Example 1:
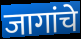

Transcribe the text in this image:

जागांचे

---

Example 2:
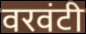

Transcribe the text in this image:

वरवंटी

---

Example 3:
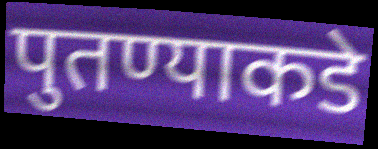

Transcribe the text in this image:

पुतण्याकडे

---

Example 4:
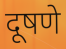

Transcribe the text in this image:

दूषणे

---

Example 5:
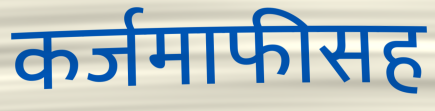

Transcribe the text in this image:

कर्जमाफीसह